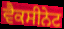
ਵੈਕਸੀਨੇਟ